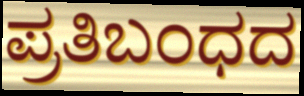
ಪ್ರತಿಬಂಧದ